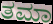
ತಮಾ